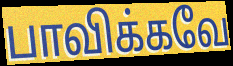
பாவிக்கவே